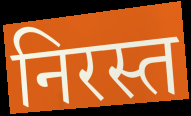
निरस्त